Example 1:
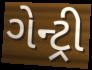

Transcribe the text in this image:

ગેન્ટ્રી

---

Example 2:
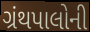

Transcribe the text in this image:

ગ્રંથપાલોની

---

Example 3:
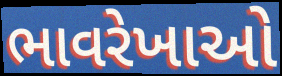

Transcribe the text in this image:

ભાવરેખાઓ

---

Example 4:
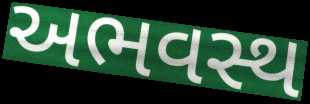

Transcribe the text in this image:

અભવસ્થ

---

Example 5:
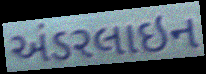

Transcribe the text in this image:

અંડરલાઇન